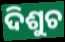
ଦିଶୁଚ